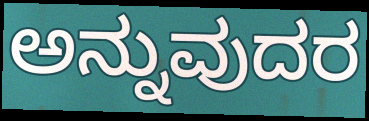
ಅನ್ನುವುದರ